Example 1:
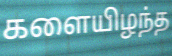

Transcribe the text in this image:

களையிழந்த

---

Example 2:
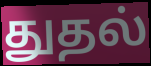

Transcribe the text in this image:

துதல்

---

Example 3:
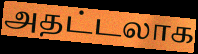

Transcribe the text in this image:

அதட்டலாக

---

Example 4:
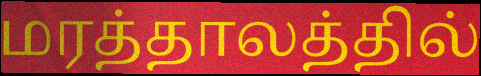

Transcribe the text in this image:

மரத்தாலத்தில்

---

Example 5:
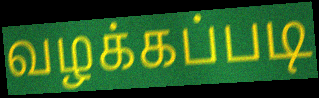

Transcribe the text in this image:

வழக்கப்படி